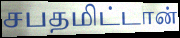
சபதமிட்டான்